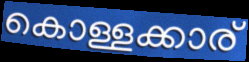
കൊള്ളക്കാര്